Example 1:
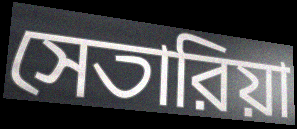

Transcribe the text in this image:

সেতারিয়া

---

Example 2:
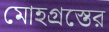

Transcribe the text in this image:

মোহগ্রস্তের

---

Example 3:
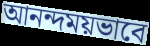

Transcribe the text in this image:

আনন্দময়ভাবে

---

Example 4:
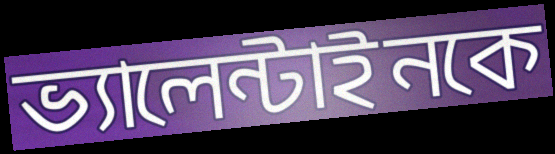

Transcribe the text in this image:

ভ্যালেন্টাইনকে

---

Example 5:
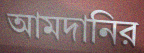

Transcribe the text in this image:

আমদানির